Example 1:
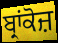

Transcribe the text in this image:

ਬ੍ਰਾਂਕੋਜ਼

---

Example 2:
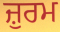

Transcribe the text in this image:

ਜ਼ੁਰਮ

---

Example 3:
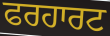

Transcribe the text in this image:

ਫਰਹਾਰਟ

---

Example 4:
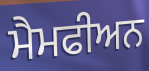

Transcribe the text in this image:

ਮੈਮਫੀਅਨ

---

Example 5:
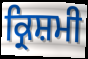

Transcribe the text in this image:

ਕ੍ਰਿਸ਼ਮੀ